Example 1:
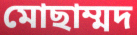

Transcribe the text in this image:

মোছাম্মদ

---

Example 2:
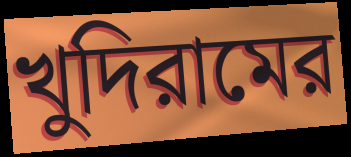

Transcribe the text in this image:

খুদিরামের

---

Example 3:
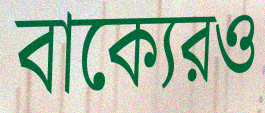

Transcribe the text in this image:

বাক্যেরও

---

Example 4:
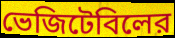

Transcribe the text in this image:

ভেজিটেবিলের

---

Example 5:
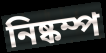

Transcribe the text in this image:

নিষ্কম্প